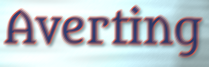
Averting